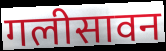
गलीसावन